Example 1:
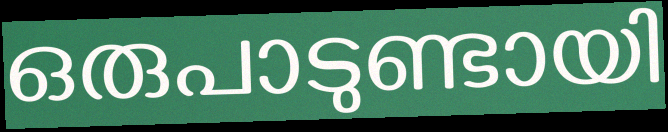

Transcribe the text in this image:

ഒരുപാടുണ്ടായി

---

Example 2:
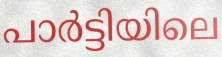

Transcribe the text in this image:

പാർട്ടിയിലെ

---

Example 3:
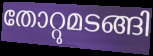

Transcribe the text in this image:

തോറ്റുമടങ്ങി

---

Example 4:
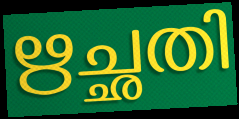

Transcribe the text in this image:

ഋച്ഛതി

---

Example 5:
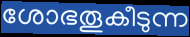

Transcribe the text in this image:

ശോഭതൂകീടുന്ന